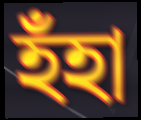
হঁহা